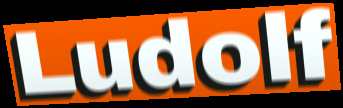
Ludolf